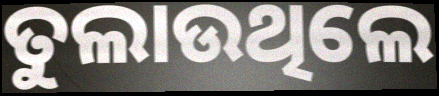
ତୁଲାଉଥିଲେ